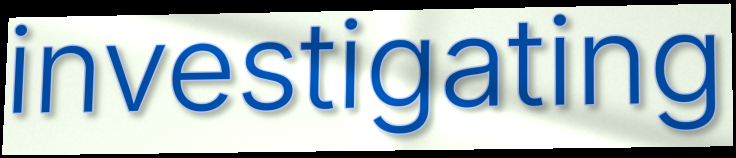
investigating